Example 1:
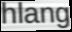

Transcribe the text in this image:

hlang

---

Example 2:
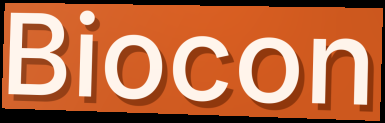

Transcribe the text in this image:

Biocon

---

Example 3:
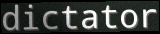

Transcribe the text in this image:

dictator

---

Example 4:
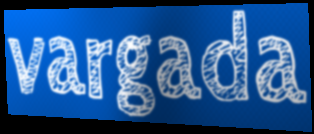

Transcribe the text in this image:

vargada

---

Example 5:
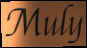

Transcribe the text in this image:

Muly